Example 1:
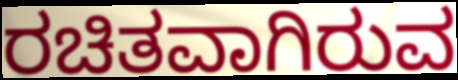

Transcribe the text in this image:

ರಚಿತವಾಗಿರುವ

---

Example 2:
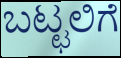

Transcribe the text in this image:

ಬಟ್ಟಲಿಗೆ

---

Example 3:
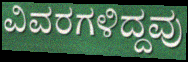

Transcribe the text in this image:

ವಿವರಗಳಿದ್ದವು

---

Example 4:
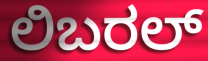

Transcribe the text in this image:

ಲಿಬರಲ್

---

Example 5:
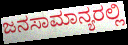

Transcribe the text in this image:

ಜನಸಾಮಾನ್ಯರಲ್ಲಿ